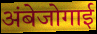
अंबेजोगाई